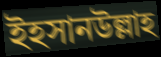
ইহসানউল্লাহ